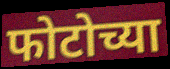
फोटोच्या